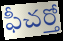
ఫీచర్తో